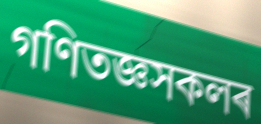
গণিতজ্ঞসকলৰ